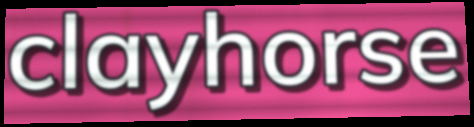
clayhorse